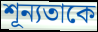
শূন্যতাকে